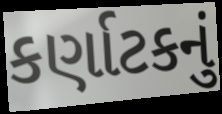
કર્ણાટકનું